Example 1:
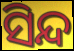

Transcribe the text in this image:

ସିନ୍ଦ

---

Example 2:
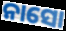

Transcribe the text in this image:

ନାସୋ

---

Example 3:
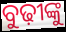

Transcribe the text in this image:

ବୁଢ଼ୀଙ୍କୁ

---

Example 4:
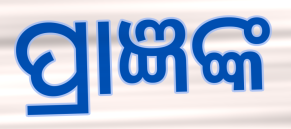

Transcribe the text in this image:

ପ୍ରାଜ୍ଞଙ୍କ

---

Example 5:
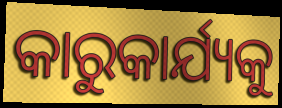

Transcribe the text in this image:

କାରୁକାର୍ଯ୍ୟକୁ